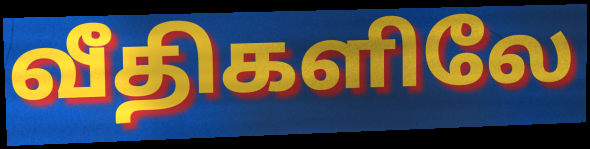
வீதிகளிலே